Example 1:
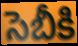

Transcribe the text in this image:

సెబీకి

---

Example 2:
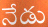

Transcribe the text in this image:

నేడు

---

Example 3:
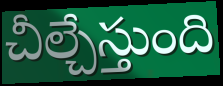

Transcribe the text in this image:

చీల్చేస్తుంది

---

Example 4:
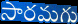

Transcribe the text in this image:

సారమగు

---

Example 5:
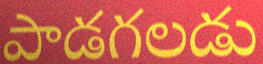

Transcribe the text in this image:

పాడగలడు